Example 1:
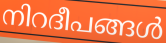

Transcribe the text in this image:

നിറദീപങ്ങൾ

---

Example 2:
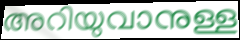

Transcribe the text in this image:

അറിയുവാനുള്ള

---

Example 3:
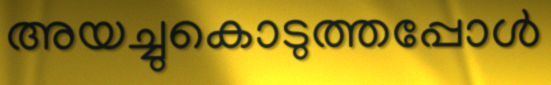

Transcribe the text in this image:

അയച്ചുകൊടുത്തപ്പോൾ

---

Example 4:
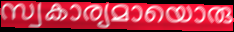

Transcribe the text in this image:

സ്വകാര്യമായൊരു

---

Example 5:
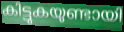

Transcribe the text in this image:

കിട്ടുകയുണ്ടായി